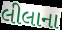
લીલાના